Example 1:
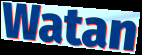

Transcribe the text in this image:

Watan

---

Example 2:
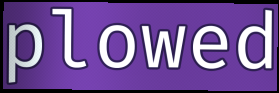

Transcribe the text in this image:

plowed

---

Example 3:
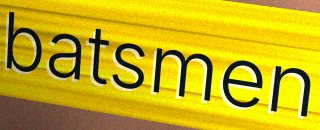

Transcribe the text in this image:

batsmen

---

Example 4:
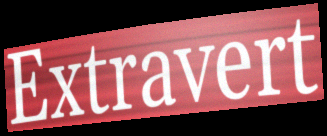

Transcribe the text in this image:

Extravert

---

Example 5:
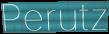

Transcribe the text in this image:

Perutz